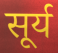
सूर्य